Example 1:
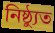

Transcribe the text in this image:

নিষ্ঠ্যুত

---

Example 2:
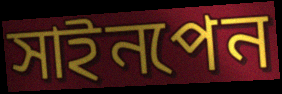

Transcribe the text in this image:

সাইনপেন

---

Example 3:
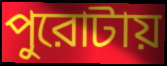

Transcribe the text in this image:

পুরোটায়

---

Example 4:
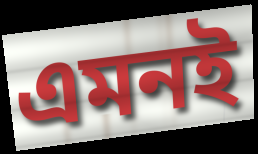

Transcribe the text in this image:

এমনই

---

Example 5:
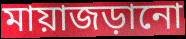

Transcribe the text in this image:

মায়াজড়ানো